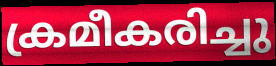
ക്രമീകരിച്ചു